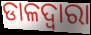
ଡାଳଦ୍ୱାରା